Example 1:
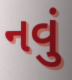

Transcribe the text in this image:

નવું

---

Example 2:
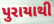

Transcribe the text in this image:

પુરાયાથી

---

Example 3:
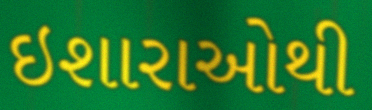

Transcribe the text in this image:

ઇશારાઓથી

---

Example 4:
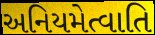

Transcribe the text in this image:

અનિયમેત્વાતિ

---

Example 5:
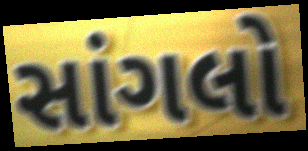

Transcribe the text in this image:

સાંગલો